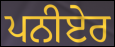
ਪਨੀਏਰ